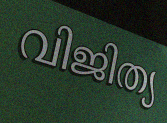
വിജിത്യ